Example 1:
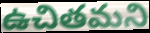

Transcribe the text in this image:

ఉచితమని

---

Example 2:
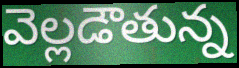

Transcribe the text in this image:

వెల్లడౌతున్న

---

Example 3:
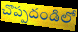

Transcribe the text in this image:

చొప్పదండిలో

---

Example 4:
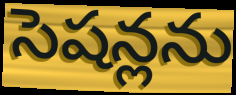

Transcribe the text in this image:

సెషన్లను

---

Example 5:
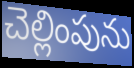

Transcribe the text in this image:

చెల్లింపును